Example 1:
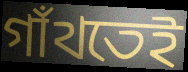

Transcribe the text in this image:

গাঁথতেই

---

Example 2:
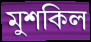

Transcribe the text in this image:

মুশকিল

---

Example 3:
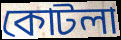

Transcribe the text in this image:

কোটলা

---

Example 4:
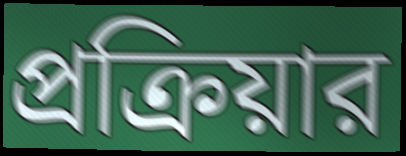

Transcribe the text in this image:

প্রক্রিয়ার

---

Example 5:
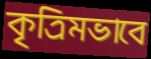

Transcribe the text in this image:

কৃত্রিমভাবে